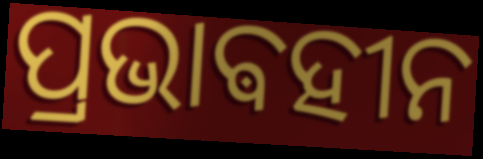
ପ୍ରଭାଵହୀନ